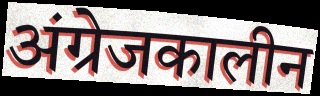
अंग्रेजकालीन